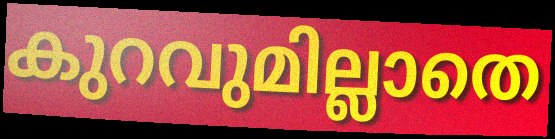
കുറവുമില്ലാതെ